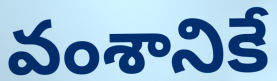
వంశానికే